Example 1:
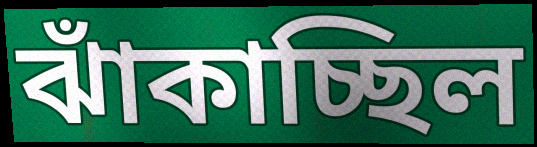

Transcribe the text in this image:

ঝাঁকাচ্ছিল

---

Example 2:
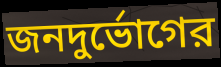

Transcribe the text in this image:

জনদুর্ভোগের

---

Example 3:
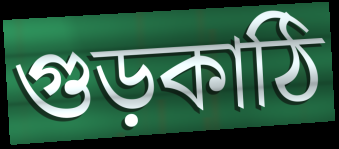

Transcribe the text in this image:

গুড়কাঠি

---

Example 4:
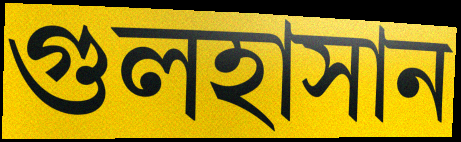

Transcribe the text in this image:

গুলহাসান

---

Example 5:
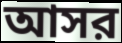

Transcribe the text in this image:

আসর